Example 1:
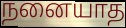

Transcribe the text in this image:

நனையாத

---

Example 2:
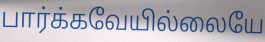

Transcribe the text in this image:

பார்க்கவேயில்லையே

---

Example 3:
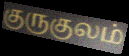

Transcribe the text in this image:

குருகுலம்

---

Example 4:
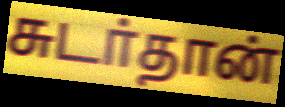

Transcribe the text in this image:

சுடர்தான்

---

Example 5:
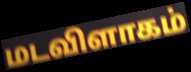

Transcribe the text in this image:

மடவிளாகம்